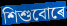
শিশুবোৰে